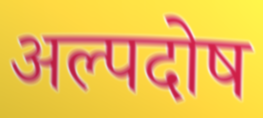
अल्पदोष